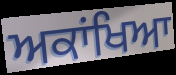
ਅਕਾਂਖਿਆ